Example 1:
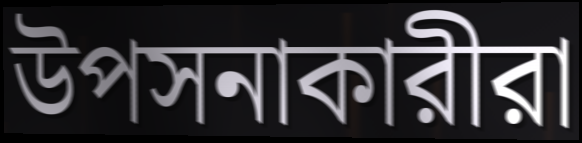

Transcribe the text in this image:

উপসনাকারীরা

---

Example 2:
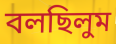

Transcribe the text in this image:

বলছিলুম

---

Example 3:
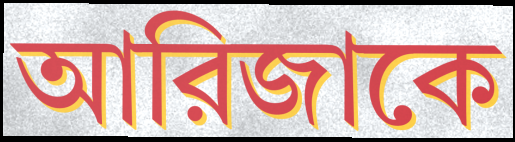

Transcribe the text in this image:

আরিজাকে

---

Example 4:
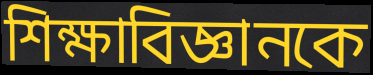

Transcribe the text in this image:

শিক্ষাবিজ্ঞানকে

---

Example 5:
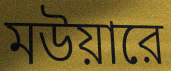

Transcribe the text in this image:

মউয়ারে